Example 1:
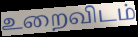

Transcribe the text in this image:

உறைவிடம்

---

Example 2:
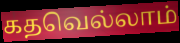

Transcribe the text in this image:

கதவெல்லாம்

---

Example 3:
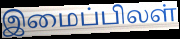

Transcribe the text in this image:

இமைப்பிலள்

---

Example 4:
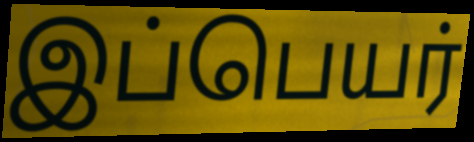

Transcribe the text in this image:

இப்பெயர்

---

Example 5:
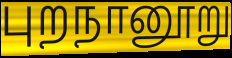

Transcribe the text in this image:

புறநானூறு